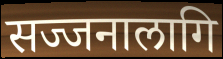
सज्जनालागि